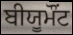
ਬੀਯੂਮੌਂਟ